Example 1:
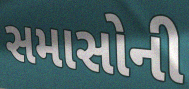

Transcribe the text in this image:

સમાસોની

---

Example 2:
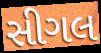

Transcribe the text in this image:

સીગલ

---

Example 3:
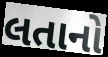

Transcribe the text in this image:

લતાનો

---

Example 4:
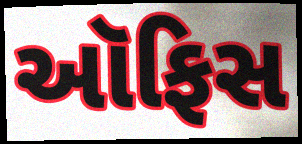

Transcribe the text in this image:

આૅફિસ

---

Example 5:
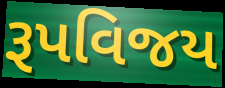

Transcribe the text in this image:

રૂપવિજય